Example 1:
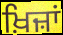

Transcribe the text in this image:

ਖ਼ਿਜ਼ਾਂ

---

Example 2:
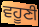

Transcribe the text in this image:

ਵਹੂਣੀ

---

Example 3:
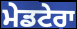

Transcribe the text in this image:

ਮੇਡਟੇਰਾ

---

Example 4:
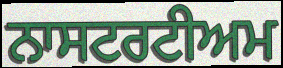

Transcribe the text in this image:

ਨਾਸਟਰਟੀਅਮ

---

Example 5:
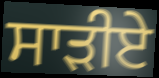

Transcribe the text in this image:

ਸਾੜੀਏ